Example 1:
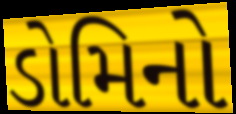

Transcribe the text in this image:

ડોમિનો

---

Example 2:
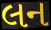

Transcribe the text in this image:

લન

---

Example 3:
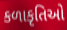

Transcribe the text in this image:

કળાકૃતિઓ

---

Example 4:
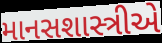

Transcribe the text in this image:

માનસશાસ્ત્રીએ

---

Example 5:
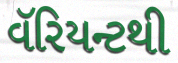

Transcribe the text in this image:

વૅરિયન્ટથી